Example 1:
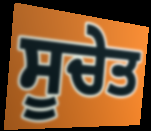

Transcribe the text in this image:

ਸੂਚੇਤ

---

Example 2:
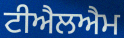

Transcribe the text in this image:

ਟੀਐਲਐਮ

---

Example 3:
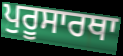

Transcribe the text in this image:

ਪੁਰੂਸਾਰਥਾ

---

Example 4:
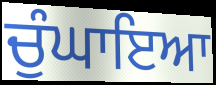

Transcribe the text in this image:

ਚੁੰਘਾਇਆ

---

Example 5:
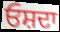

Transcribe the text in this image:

ਓਸ਼ਦਾ